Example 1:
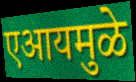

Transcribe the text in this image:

एआयमुळे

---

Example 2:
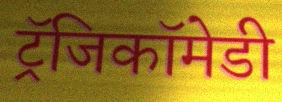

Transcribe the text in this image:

ट्रॅजिकॉमेडी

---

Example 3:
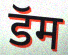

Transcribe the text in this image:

डॅम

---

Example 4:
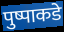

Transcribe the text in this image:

पुष्पाकडे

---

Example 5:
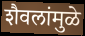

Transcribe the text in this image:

शैवलांमुळे